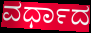
ವರ್ಧಾದ